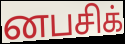
னபசிக்